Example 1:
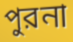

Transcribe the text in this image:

পুরনা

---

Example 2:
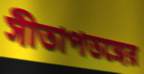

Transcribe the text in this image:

সীতাপতঙ্গের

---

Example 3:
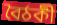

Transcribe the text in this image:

বৈঠকী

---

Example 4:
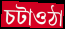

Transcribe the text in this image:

চটাওঠা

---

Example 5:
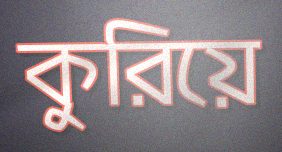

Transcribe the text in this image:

কুরিয়ে